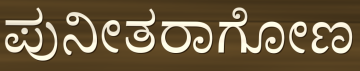
ಪುನೀತರಾಗೋಣ